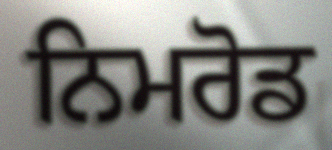
ਨਿਮਰੋਡ